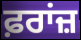
ਫ਼ਰਾਂਜ਼